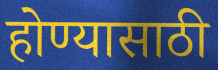
होण्यासाठी